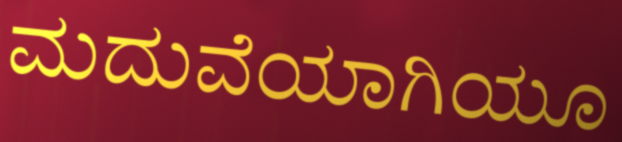
ಮದುವೆಯಾಗಿಯೂ